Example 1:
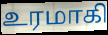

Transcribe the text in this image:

உரமாகி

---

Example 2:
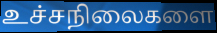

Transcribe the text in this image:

உச்சநிலைகளை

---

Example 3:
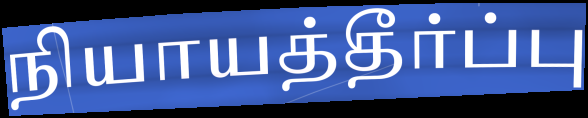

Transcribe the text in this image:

நியாயத்தீர்ப்பு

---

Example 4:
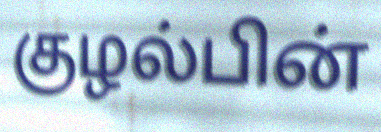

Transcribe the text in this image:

குழல்பின்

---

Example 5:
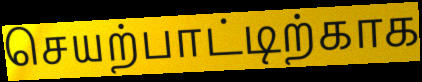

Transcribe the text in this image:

செயற்பாட்டிற்காக